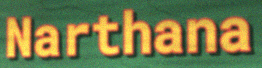
Narthana